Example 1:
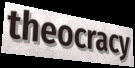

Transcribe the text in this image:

theocracy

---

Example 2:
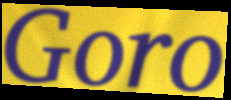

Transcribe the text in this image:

Goro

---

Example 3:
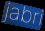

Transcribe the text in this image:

jabri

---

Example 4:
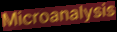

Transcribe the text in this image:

Microanalysis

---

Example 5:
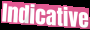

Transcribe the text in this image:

Indicative